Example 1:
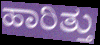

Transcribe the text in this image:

ಹಾರಿತ್ತು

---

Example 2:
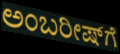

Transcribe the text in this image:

ಅಂಬರೀಷ್‌ಗೆ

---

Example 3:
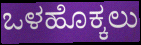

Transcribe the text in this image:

ಒಳಹೊಕ್ಕಲು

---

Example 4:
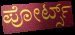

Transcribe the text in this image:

ಪೋರ್ಟ್ಸ್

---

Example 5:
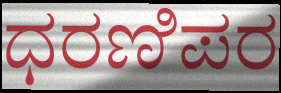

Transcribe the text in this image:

ಧರಣಿಪರ